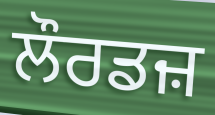
ਲੌਰਡਜ਼